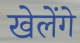
खेलेंगे